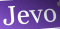
Jevo